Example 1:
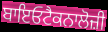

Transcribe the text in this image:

ਬਾਇਓਟੈਕਨਾਲੋਜ਼ੀ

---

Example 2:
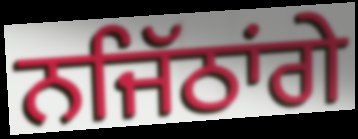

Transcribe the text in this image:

ਨਜਿੱਠਾਂਗੇ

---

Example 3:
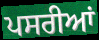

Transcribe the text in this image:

ਪਸਰੀਆਂ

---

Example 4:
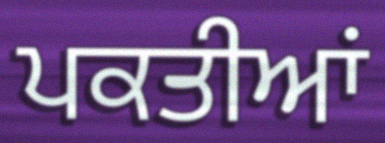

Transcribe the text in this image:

ਪਕਤੀਆਂ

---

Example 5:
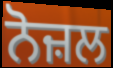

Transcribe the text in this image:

ਨੋਜ਼ਲ